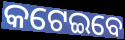
କଟେଇବେ